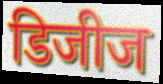
डिजीज